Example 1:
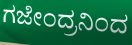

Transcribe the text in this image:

ಗಜೇಂದ್ರನಿಂದ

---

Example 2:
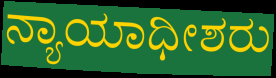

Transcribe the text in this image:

ನ್ಯಾಯಾಧೀಶರು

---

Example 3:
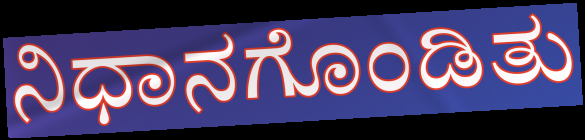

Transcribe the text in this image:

ನಿಧಾನಗೊಂಡಿತು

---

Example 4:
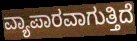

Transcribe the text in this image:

ವ್ಯಾಪಾರವಾಗುತ್ತಿದೆ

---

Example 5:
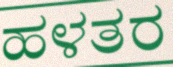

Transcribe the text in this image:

ಹಳತರ